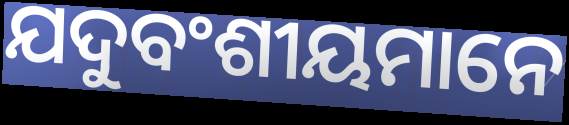
ଯଦୁବଂଶୀୟମାନେ